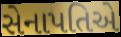
સેનાપતિએ